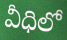
వీధిలో